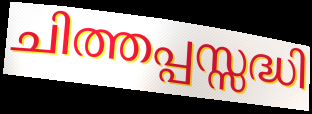
ചിത്തപ്പസ്സദ്ധി